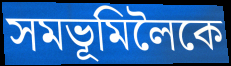
সমভূমিলৈকে